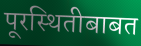
पूरस्थितीबाबत